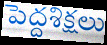
పెద్దశిక్షలు